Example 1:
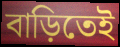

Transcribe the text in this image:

বাড়িতেই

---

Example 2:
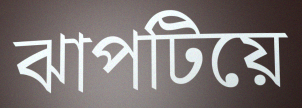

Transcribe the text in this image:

ঝাপটিয়ে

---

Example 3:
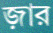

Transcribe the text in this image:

জ়ার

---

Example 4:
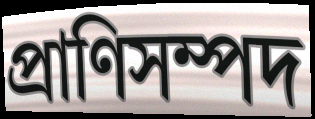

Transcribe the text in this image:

প্রাণিসম্পদ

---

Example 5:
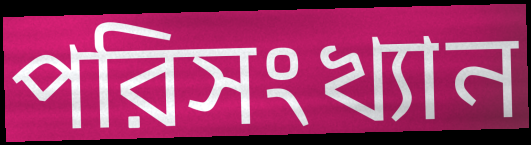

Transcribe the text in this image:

পরিসংখ্যান